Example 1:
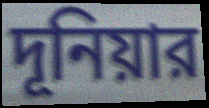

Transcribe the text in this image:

দূনিয়ার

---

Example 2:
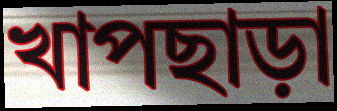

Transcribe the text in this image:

খাপছাড়া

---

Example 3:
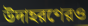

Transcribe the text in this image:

উদাহরণেরও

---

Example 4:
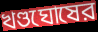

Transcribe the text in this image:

খণ্ডঘোষের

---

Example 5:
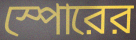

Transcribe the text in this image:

স্পোরের